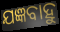
ଯଜ୍ଞବାହୁ